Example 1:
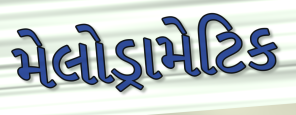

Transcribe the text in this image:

મેલોડ્રામેટિક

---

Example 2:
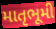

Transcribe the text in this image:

માતૃભૂમી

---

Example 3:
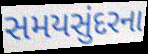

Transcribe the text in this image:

સમયસુંદરના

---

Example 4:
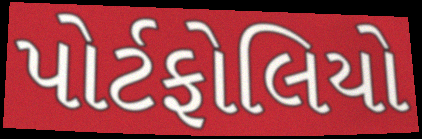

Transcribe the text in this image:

પોર્ટફોલિયો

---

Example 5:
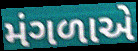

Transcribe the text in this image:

મંગળાએ